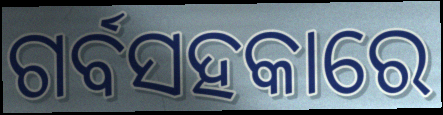
ଗର୍ବସହକାରେ